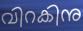
വിറകിനു